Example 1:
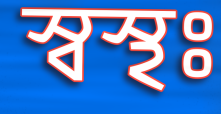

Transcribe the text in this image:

স্বস্থঃ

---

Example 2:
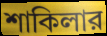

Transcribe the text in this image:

শাকিলার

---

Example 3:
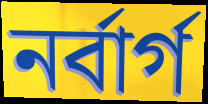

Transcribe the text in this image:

নর্বার্গ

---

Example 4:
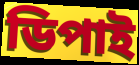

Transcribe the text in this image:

ডিপাই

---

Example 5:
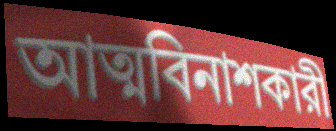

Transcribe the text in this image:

আত্মবিনাশকারী